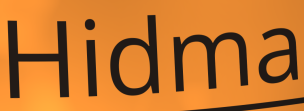
Hidma